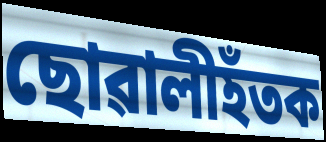
ছোৱালীহঁতক